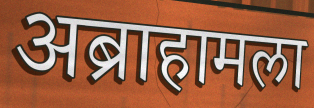
अब्राहामला